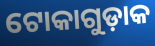
ଟୋକାଗୁଡ଼ାକ